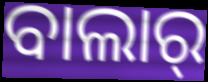
ବାଲାର୍